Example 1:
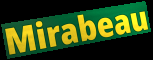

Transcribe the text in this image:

Mirabeau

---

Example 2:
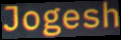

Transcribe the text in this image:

Jogesh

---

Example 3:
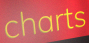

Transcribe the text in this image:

charts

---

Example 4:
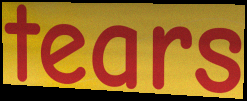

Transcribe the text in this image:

tears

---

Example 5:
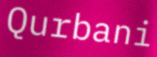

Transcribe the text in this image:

Qurbani